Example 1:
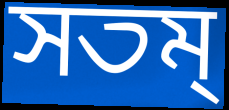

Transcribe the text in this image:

সতম্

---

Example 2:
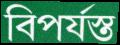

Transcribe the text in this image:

বিপৰ্যস্ত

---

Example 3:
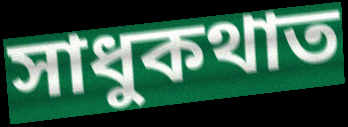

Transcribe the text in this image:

সাধুকথাত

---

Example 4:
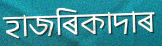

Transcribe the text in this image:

হাজৰিকাদাৰ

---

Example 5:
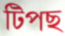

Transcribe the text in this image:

টিপছ